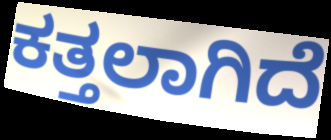
ಕತ್ತಲಾಗಿದೆ